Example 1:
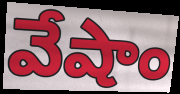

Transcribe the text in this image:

వేషాం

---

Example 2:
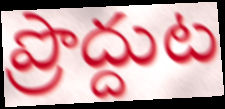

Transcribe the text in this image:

ప్రొద్దుట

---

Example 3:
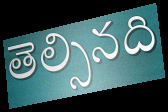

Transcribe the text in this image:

తెల్సినది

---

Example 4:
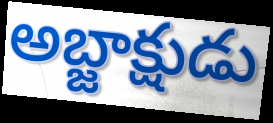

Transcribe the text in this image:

అబ్జాక్షుడు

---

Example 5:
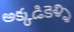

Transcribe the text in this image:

అక్కడికెళ్ళి